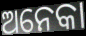
ଅନେକା